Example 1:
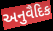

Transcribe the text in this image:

અનુવૈદિક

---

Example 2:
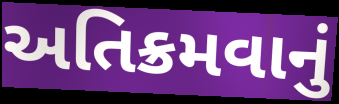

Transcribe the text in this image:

અતિક્રમવાનું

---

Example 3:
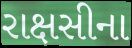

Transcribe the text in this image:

રાક્ષસીના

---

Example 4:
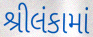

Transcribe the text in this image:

શ્રીલંકામાં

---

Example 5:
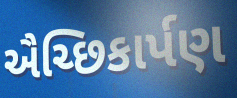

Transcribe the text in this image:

ઐચ્છિકાર્પણ